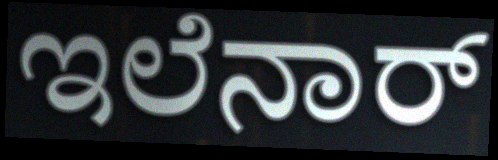
ಇಲೆನಾರ್